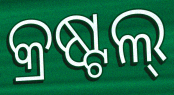
କ୍ରଷ୍ଟଲ୍